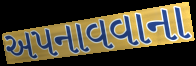
અપનાવવાના